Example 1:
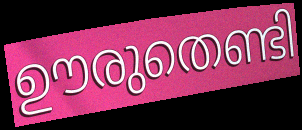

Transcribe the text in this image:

ഊരുതെണ്ടി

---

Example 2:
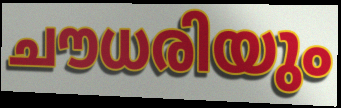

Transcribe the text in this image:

ചൗധരിയും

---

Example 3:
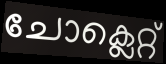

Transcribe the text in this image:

ചോക്ലെറ്റ്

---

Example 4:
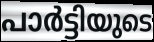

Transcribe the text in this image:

പാർട്ടിയുടെ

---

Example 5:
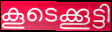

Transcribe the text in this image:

കൂടെക്കൂട്ടി